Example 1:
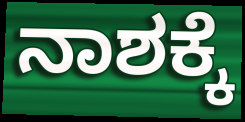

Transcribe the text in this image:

ನಾಶಕ್ಕೆ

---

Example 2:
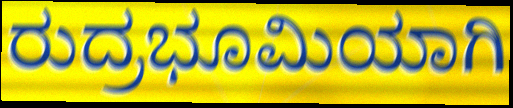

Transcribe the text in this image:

ರುದ್ರಭೂಮಿಯಾಗಿ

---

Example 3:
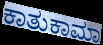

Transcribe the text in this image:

ಕಾತುಕಾಮಾ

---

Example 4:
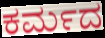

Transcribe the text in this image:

ಕರ್ಮದ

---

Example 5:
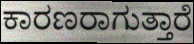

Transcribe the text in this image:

ಕಾರಣರಾಗುತ್ತಾರೆ